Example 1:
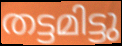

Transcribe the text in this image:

തട്ടമിട്ടു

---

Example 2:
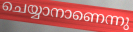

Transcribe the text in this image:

ചെയ്യാനാണെന്നു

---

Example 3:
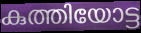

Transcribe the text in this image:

കുത്തിയോട്ട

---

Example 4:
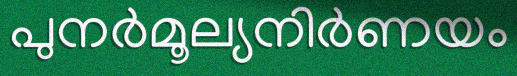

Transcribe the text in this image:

പുനർമൂല്യനിർണയം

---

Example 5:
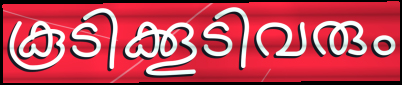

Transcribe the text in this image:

കൂടിക്കൂടിവരും